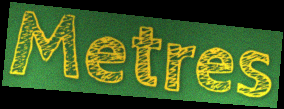
Metres